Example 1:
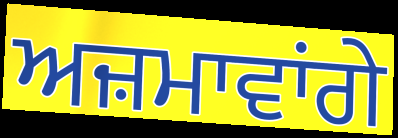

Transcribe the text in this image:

ਅਜ਼ਮਾਵਾਂਗੇ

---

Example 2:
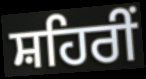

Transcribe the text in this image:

ਸ਼ਹਿਰੀਂ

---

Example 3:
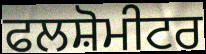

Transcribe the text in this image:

ਫਲਸ਼ੋਮੀਟਰ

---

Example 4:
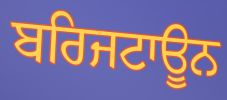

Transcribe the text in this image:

ਬਰਿਜਟਾਊਨ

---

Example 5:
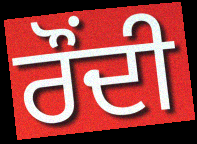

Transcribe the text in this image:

ਰੌਂਦੀ